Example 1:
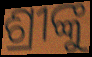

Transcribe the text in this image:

ଶ୍ରୀଙ୍କୁ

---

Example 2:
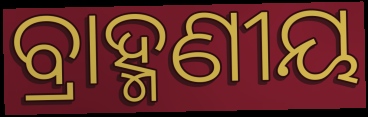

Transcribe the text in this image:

ବ୍ରାହ୍ମଣୀୟ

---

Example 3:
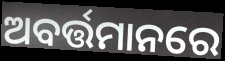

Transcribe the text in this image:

ଅବର୍ତ୍ତମାନରେ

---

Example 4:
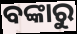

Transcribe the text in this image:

ବଙ୍କାରୁ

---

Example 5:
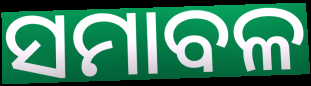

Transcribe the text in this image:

ସମାବଳ